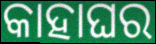
କାହାଘର